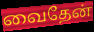
வைதேன்